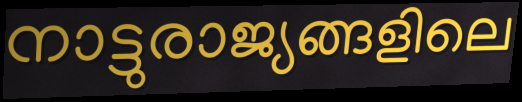
നാട്ടുരാജ്യങ്ങളിലെ